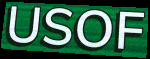
USOF